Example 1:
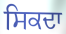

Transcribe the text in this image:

ਸਿਕਦਾ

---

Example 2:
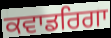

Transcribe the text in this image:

ਕਵਾਡਰਿਗਾ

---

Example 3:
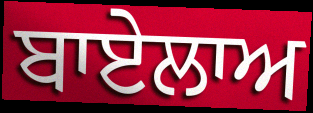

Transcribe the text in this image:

ਬਾਏਲਾਅ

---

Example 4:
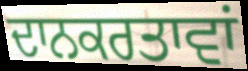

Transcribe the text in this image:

ਦਾਨਕਰਤਾਵਾਂ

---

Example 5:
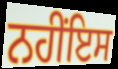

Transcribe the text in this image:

ਨਹੀਂਇਸ